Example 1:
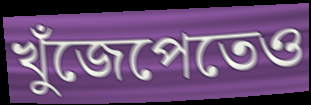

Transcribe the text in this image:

খুঁজেপেতেও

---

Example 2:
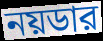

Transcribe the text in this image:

নয়ডার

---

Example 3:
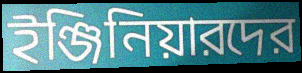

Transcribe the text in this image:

ইঞ্জিনিয়ারদের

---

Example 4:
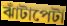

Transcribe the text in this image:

ঝাঁটাপেটা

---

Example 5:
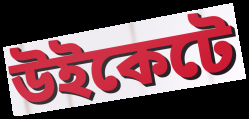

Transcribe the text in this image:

উইকেটে